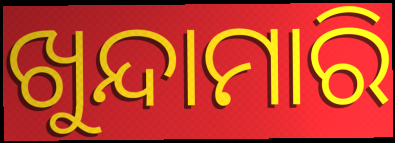
ଖୁନ୍ଦାମାରି